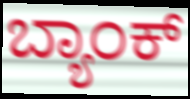
ಬ್ಯಾಂಕ್